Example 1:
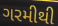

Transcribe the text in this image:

ગરમીથી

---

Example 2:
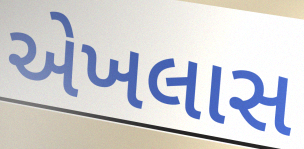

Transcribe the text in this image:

એખલાસ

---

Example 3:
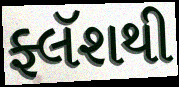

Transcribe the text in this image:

ફ્લૅશથી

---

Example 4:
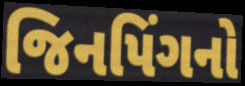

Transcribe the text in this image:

જિનપિંગનો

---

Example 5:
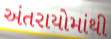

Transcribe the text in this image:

અંતરાયોમાંથી